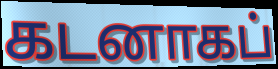
கடனாகப்